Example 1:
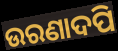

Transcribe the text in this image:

ଉରଣାଦପି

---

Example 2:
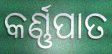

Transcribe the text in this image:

କର୍ଣ୍ଣପାତ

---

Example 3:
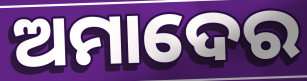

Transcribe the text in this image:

ଅମାଦେର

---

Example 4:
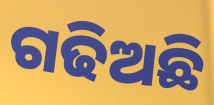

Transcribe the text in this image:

ଗଢିଅଛି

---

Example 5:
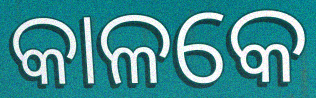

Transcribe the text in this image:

କାଳକେ